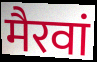
मैरवां